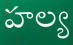
హల్య